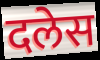
दलेस